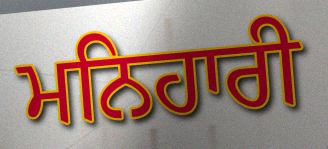
ਮਨਿਹਾਰੀ